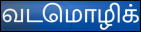
வடமொழிக்